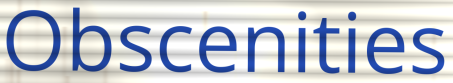
Obscenities